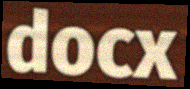
docx